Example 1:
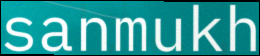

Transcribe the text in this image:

sanmukh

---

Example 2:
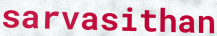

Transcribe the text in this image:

sarvasithan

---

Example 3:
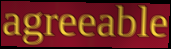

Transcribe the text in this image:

agreeable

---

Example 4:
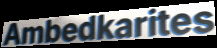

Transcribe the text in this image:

Ambedkarites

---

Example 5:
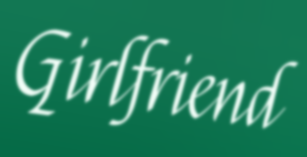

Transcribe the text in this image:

Girlfriend